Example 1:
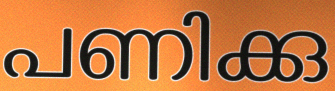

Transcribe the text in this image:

പണിക്കു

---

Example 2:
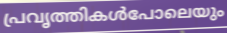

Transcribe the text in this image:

പ്രവൃത്തികൾപോലെയും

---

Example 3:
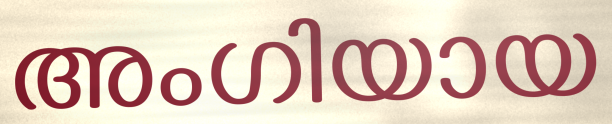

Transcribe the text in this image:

അംഗിയായ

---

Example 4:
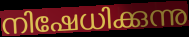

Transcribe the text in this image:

നിഷേധിക്കുന്നു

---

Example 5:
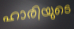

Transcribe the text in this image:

ഹാരിയുടെ